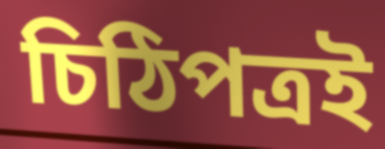
চিঠিপত্রই